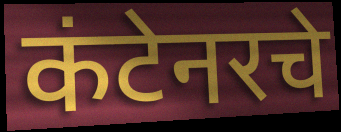
कंटेनरचे